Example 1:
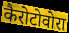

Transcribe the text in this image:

कैरोटोवोरा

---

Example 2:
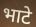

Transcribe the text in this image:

भाटे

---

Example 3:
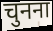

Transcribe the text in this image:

चुनना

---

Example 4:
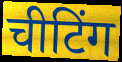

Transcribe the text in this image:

चीटिंग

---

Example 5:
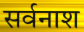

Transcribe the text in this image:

सर्वनाश